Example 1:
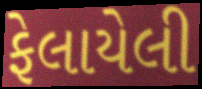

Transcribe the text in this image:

ફેલાયેલી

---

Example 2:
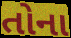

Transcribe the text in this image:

તોના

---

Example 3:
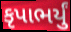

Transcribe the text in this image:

કૃપાભર્યું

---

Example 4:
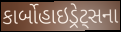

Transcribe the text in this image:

કાર્બોહાઇડ્રેટ્સના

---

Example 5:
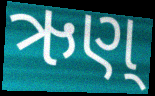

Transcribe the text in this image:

ઋણ્